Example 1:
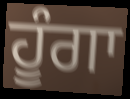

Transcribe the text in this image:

ਹੂੰਗਾ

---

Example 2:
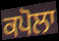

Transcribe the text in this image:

ਕਪੋਲਾ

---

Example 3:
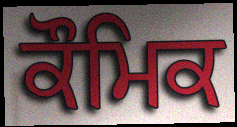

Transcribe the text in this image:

ਕੌਮਿਕ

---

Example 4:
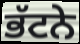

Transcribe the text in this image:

ਭੱਟਨੇ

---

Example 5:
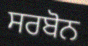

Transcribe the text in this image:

ਸਰਬੋਨ